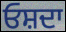
ਓਸ਼ਦਾ